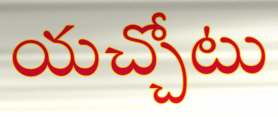
యచ్చోటు